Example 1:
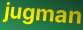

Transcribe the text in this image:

jugman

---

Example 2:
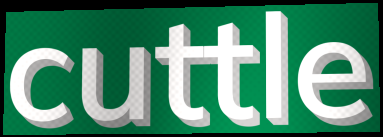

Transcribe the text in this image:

cuttle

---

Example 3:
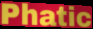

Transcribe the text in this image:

Phatic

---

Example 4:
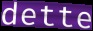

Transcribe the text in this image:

dette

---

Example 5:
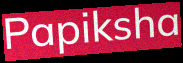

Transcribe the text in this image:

Papiksha